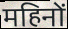
महिनों